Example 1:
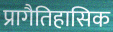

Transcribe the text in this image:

प्रागैतिहासिक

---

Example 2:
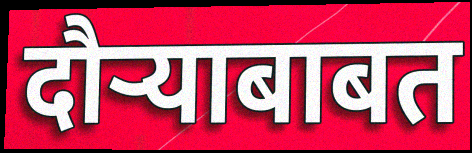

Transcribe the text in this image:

दौऱ्याबाबत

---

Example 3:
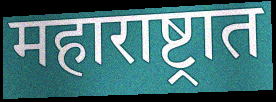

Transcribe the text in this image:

महाराष्ट्रात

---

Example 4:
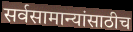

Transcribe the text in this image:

सर्वसामान्यांसाठीच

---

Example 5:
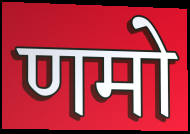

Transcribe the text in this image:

णमो